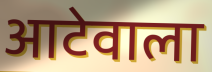
आटेवाला